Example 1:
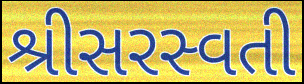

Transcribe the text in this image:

શ્રીસરસ્વતી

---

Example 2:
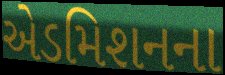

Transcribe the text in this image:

એડમિશનના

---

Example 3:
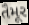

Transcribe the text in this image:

તૈમૂર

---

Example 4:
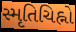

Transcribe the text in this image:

સ્મૃતિચિહ્નો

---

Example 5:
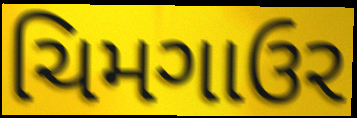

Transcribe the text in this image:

ચિમગાઉર